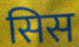
सिस